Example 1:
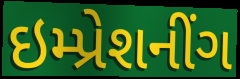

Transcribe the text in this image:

ઇમ્પ્રેશનીંગ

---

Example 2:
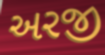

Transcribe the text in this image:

અરજી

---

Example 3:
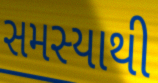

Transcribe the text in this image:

સમસ્યાથી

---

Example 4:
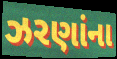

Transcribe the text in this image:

ઝરણાંના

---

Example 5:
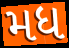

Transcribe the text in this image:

મધ